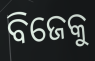
ବିଜେକୁ